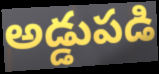
అడ్డుపడి